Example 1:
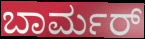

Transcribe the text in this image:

ಬಾರ್ಮರ್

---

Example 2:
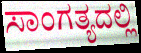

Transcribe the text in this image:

ಸಾಂಗತ್ಯದಲ್ಲಿ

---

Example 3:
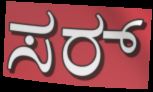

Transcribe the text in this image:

ಸರ‍್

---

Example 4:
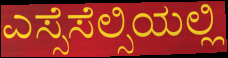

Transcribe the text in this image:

ಎಸ್ಸೆಸೆಲ್ಸಿಯಲ್ಲಿ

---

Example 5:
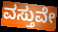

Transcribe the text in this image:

ವಸ್ತುವೇ